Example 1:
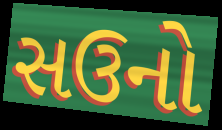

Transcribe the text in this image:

સઉનો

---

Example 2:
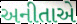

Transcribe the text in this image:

અનીતાએ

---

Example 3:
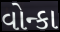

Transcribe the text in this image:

વોન્કા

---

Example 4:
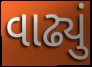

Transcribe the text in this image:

વાઢ્યું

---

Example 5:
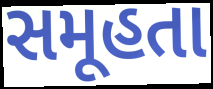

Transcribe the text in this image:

સમૂહતા